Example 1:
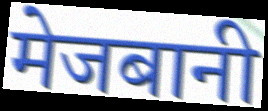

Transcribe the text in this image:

मेजबानी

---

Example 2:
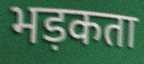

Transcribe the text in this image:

भड़कता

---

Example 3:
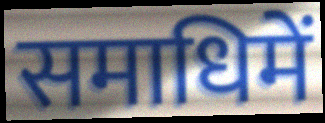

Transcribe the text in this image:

समाधिमें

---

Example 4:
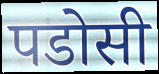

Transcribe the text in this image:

पडोसी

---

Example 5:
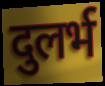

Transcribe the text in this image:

दुलर्भ